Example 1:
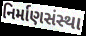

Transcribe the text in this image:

નિર્માણસંસ્થા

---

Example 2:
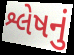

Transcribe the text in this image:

શ્લેષનું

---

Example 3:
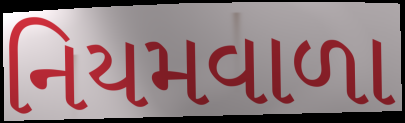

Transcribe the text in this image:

નિયમવાળા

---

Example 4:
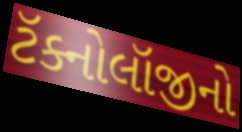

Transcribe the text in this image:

ટૅક્નોલૉજીનો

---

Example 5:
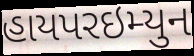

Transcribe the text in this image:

હાયપરઇમ્યુન